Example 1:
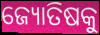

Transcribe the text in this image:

ଜ୍ୟୋତିଷକୁ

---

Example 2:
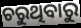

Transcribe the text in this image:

ଚରୁଥିବାରୁ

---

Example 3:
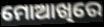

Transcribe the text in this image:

ମୋଆଖିରେ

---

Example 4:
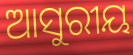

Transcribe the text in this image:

ଆସୁରୀୟ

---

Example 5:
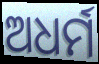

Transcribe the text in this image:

ଅଧର୍ମ